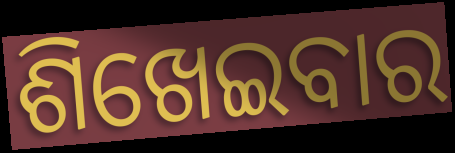
ଶିଖେଇବାର